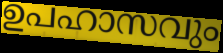
ഉപഹാസവും